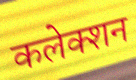
कलेक्शन